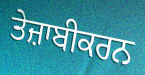
ਤੇਜ਼ਾਬੀਕਰਨ